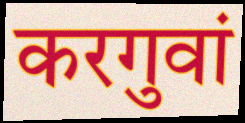
करगुवां